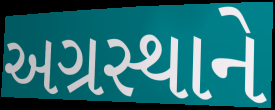
અગ્રસ્થાને